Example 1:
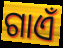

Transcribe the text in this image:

ଗାଏଁ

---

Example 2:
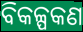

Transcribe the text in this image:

ବିକଳ୍ପକଣ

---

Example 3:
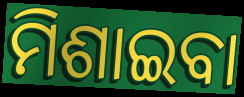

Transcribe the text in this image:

ମିଶାଇବା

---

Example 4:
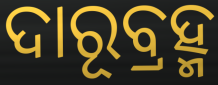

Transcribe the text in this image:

ଦାରୂବ୍ରହ୍ମ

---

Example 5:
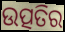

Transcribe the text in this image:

ଉତ୍ପତିର